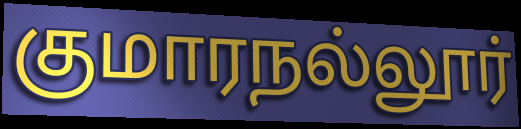
குமாரநல்லூர்